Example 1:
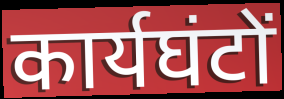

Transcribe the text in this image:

कार्यघंटों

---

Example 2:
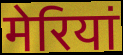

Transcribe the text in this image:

मेरियां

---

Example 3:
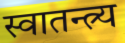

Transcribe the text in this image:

स्वातन्त्र्य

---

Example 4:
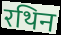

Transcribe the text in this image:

रथिन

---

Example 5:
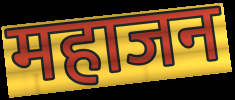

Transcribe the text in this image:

महाजन